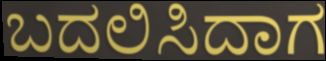
ಬದಲಿಸಿದಾಗ